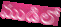
ముడిలో